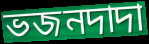
ভজনদাদা